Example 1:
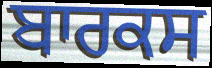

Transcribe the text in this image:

ਬਾਰਕਸ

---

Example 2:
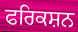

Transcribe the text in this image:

ਫਰਿਕਸ਼ਨ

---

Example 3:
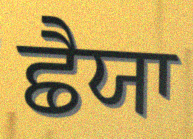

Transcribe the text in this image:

ਛੈਯਾ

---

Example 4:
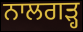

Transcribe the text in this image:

ਨਾਲਗੜ੍ਹ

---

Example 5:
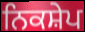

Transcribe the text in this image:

ਨਿਕਸ਼ੇਪ